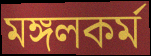
মঙ্গলকর্ম